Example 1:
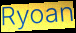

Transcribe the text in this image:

Ryoan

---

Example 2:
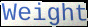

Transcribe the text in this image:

Weight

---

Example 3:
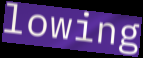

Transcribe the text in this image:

lowing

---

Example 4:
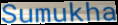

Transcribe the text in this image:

Sumukha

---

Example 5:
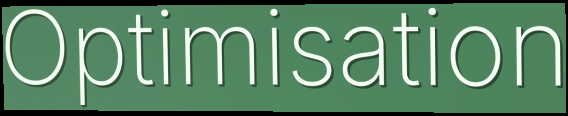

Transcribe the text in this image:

Optimisation